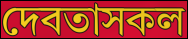
দেবতাসকল